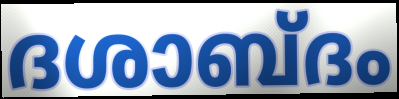
ദശാബ്ദം